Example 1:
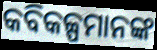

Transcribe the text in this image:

କବିକଳ୍ପମାନଙ୍କ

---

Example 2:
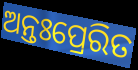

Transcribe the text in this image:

ଅନ୍ତଃପ୍ରେରିତ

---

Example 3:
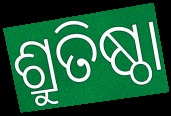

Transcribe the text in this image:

ଶ୍ରୁତିଷ୍ଠା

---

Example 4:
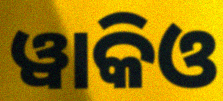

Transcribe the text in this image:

ୱାକିଓ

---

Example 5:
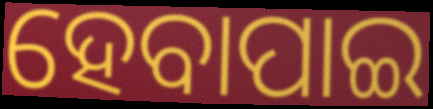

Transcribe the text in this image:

ହେବାପାଇ